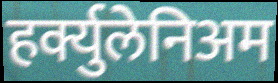
हर्क्युलेनिअम